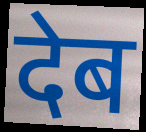
देब